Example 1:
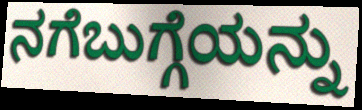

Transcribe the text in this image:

ನಗೆಬುಗ್ಗೆಯನ್ನು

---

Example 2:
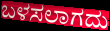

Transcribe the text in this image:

ಬಳಸಲಾಗದು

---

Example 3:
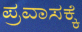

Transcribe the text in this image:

ಪ್ರವಾಸಕ್ಕೆ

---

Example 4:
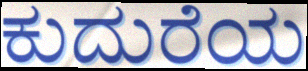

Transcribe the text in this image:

ಕುದುರೆಯ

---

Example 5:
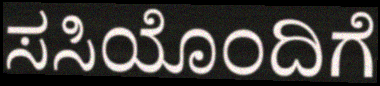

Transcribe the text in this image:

ಸಸಿಯೊಂದಿಗೆ